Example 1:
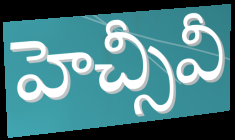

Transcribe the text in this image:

హెచ్సీవీ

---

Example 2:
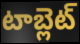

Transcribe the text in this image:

టాబ్లెట్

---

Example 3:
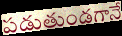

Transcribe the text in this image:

పడుతుండగానే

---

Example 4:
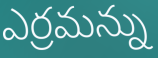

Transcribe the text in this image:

ఎర్రమన్ను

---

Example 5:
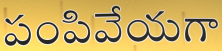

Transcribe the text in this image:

పంపివేయగా